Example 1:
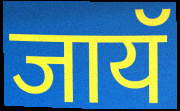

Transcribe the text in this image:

जायॅ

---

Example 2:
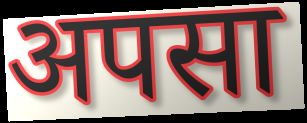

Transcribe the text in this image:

अपसा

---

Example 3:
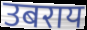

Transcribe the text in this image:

उबराय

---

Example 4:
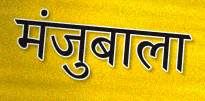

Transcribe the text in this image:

मंजुबाला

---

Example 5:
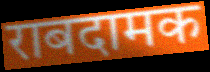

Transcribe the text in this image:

राबदामक